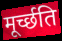
मूर्च्छति